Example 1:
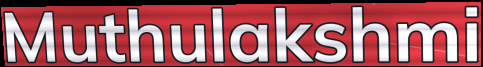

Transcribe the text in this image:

Muthulakshmi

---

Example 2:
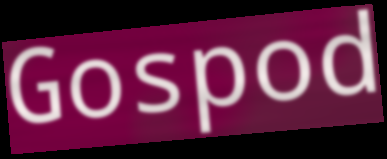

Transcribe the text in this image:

Gospod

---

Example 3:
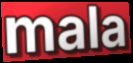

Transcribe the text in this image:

mala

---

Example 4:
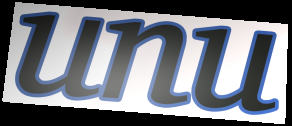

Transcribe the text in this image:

unu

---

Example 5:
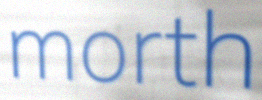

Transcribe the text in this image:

morth